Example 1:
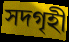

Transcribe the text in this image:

সদগৃহী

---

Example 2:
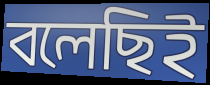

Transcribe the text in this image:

বলেছিই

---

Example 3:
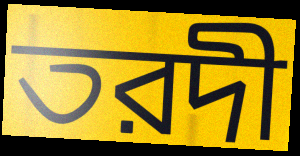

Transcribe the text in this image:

তরদী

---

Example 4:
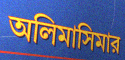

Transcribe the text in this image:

অলিমাসিমার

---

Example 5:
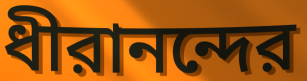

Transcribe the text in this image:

ধীরানন্দের